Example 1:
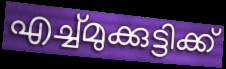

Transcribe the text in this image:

എച്ച്മുക്കുട്ടിക്ക്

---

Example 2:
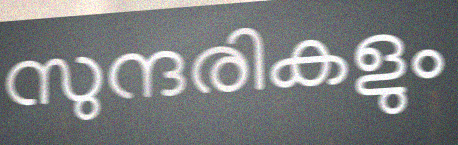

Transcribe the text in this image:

സുന്ദരികളും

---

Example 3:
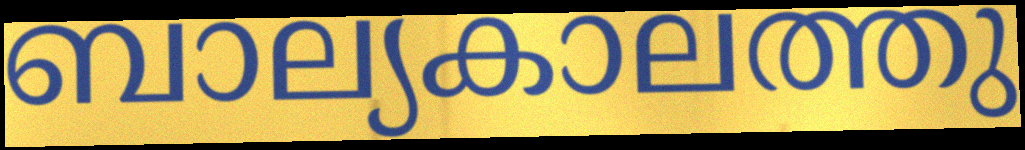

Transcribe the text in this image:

ബാല്യകാലത്തു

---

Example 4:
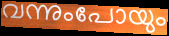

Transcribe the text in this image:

വന്നുംപോയും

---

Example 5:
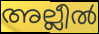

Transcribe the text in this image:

അല്ലീൽ